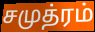
சமுத்ரம்